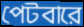
পেটবারে